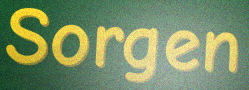
Sorgen